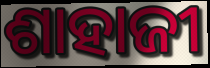
ଶାହାଜୀ